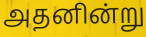
அதனின்று